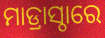
ମାଡ୍ରାସ୍ଠାରେ